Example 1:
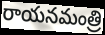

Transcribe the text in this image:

రాయనమంత్రి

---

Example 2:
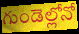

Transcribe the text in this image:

గుండెల్లోనో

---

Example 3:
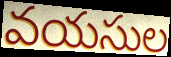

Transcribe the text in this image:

వయసుల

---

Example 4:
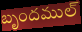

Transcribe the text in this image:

బృందముల్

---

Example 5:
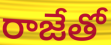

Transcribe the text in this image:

రాజేతో